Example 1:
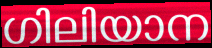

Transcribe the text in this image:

ഗിലിയാന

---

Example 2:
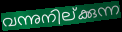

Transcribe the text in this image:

വന്നുനില്ക്കുന്ന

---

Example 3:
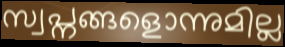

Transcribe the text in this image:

സ്വപ്നങ്ങളൊന്നുമില്ല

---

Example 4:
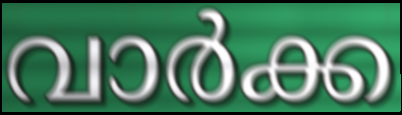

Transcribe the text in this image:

വാർക്ക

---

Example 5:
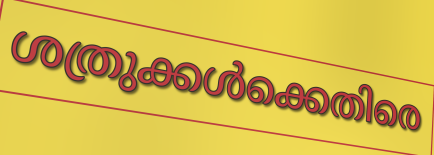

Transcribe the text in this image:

ശത്രുക്കൾക്കെതിരെ